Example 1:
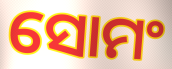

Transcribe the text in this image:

ସୋମଂ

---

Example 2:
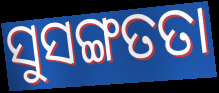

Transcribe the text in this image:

ସୁସଙ୍ଗତତା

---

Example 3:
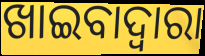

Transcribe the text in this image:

ଖାଇବାଦ୍ୱାରା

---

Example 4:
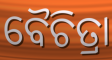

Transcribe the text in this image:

ବୈଚିତ୍ରା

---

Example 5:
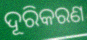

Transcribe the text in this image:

ଦୂରିକରଣ